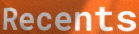
Recents